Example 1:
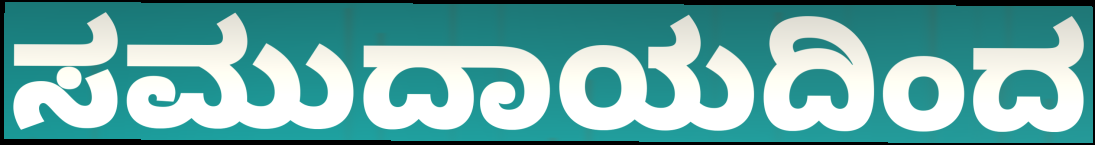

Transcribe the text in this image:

ಸಮುದಾಯದಿಂದ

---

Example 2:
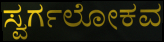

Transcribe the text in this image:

ಸ್ವರ್ಗಲೋಕವ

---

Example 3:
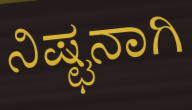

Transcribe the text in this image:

ನಿಷ್ಟನಾಗಿ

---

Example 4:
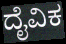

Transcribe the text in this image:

ದೈವಿಕ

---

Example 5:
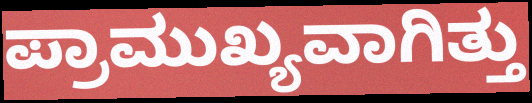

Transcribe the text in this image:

ಪ್ರಾಮುಖ್ಯವಾಗಿತ್ತು